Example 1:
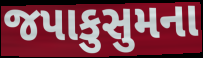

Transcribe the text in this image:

જપાકુસુમના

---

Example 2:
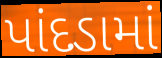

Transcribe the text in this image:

પાંદડામાં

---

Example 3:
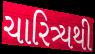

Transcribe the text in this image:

ચારિત્ર્યથી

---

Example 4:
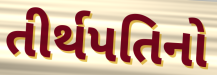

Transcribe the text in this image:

તીર્થપતિનો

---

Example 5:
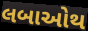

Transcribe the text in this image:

લબાઓથ